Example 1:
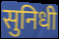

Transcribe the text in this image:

सुनिधी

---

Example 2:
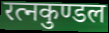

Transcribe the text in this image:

रत्नकुण्डल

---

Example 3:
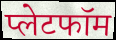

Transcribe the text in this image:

प्लेटफॉम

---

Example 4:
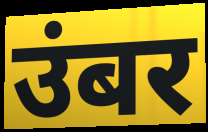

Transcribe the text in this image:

उंबर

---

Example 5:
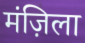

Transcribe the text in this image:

मंज़िला